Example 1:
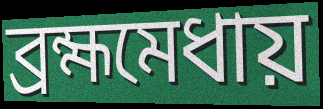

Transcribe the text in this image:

ব্রহ্মমেধায়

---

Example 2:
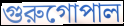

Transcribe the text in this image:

গুরুগোপাল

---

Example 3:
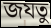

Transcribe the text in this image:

জযতু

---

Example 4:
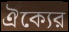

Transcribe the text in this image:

ঐক্যের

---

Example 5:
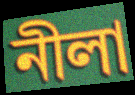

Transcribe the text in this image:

নীলা